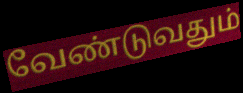
வேண்டுவதும்